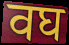
वघ